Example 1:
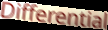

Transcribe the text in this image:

Differential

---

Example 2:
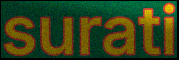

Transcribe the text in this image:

surati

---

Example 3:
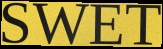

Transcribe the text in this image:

SWET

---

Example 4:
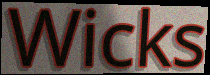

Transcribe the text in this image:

Wicks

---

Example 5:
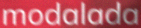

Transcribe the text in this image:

modalada